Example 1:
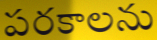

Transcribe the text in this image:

పరకాలను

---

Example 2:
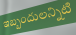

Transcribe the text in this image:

ఇబ్బందులన్నిటి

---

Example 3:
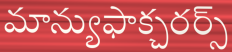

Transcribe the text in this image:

మాన్యుఫాక్చరర్స్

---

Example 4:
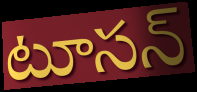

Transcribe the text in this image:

టూసన్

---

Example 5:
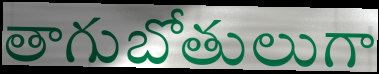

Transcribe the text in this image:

తాగుబోతులుగా